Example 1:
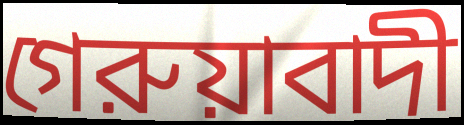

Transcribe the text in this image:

গেরুয়াবাদী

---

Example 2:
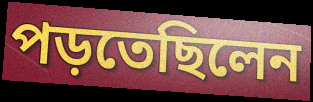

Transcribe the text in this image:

পড়তেছিলেন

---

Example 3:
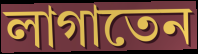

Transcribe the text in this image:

লাগাতেন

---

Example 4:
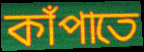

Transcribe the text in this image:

কাঁপাতে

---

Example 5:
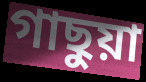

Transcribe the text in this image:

গাছুয়া